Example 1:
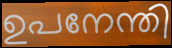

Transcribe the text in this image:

ഉപനേന്തി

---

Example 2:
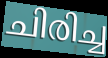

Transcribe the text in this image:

ചിരിച്ച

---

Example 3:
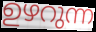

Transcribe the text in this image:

ഉഴറുന്ന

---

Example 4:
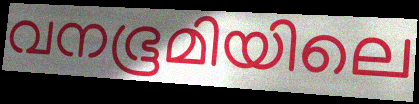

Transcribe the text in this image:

വനഭൂമിയിലെ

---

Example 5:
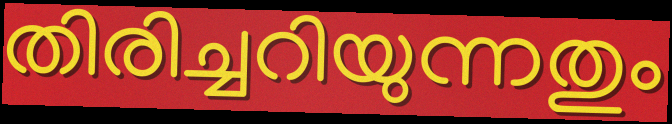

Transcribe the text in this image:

തിരിച്ചറിയുന്നതും